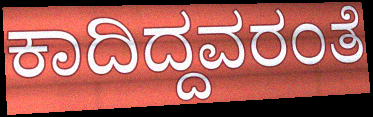
ಕಾದಿದ್ದವರಂತೆ